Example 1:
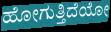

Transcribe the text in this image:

ಹೋಗುತ್ತಿದೆಯೋ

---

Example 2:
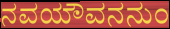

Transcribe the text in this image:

ನವಯೌವನನುಂ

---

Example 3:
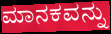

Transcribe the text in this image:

ಮಾನಕವನ್ನು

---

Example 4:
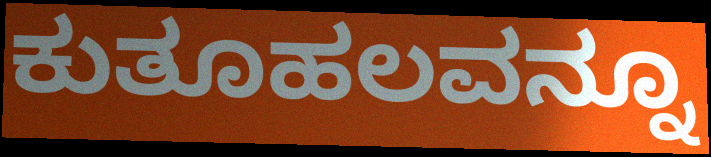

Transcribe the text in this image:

ಕುತೂಹಲವನ್ನೂ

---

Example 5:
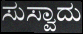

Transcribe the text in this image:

ಸುಸ್ವಾದು